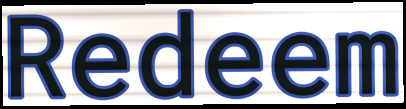
Redeem